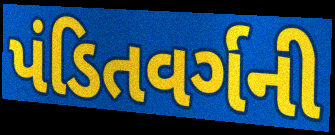
પંડિતવર્ગની